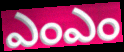
ఎంఎం